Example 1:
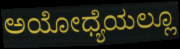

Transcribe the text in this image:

ಅಯೋಧ್ಯೆಯಲ್ಲೂ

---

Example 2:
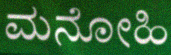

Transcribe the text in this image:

ಮನೋಹಿ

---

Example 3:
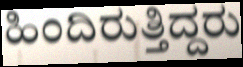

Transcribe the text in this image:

ಹಿಂದಿರುತ್ತಿದ್ದರು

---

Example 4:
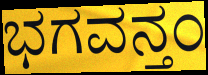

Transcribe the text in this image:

ಭಗವನ್ತಂ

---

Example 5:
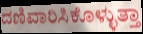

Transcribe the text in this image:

ದಣಿವಾರಿಸಿಕೊಳ್ಳುತ್ತಾ